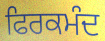
ਫਿਰਕਮੰਦ